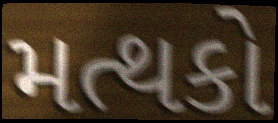
મત્થકો